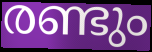
രണ്ടും